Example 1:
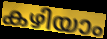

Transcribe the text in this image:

കഴിയാം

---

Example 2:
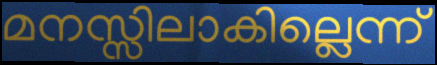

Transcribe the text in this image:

മനസ്സിലാകില്ലെന്ന്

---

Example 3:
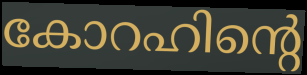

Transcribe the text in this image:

കോറഹിന്റെ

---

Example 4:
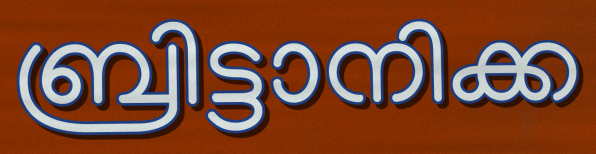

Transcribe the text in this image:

ബ്രിട്ടാനിക്ക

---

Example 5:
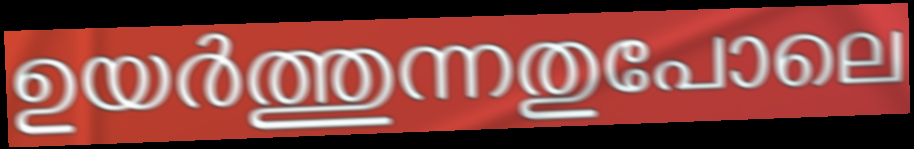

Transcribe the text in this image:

ഉയർത്തുന്നതുപോലെ